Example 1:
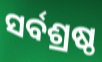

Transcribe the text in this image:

ସର୍ବଶ୍ରଷ୍ଠ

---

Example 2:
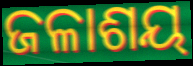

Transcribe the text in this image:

ଜଳାଶୟ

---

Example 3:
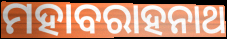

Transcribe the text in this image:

ମହାବରାହନାଥ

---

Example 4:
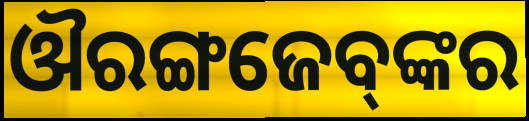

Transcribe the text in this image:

ଔରଙ୍ଗଜେବ୍‌ଙ୍କର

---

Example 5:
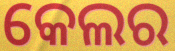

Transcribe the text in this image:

କେଲର